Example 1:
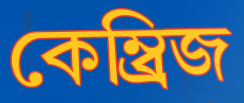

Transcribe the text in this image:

কেম্ব্রিজ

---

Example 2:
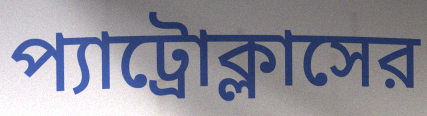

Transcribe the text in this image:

প্যাট্রোক্লাসের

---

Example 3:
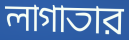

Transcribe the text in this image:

লাগাতার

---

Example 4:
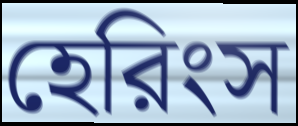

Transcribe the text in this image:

হেরিংস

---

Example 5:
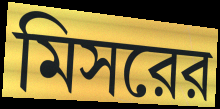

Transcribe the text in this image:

মিসরের